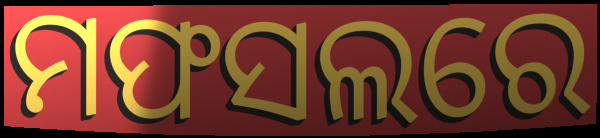
ମଫସଲରେ